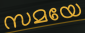
സമയേ